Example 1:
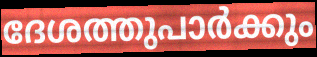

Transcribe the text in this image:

ദേശത്തുപാർക്കും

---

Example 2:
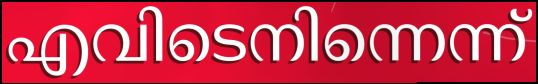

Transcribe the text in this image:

എവിടെനിന്നെന്ന്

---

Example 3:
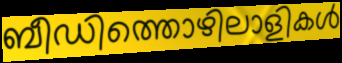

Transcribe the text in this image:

ബീഡിത്തൊഴിലാളികൾ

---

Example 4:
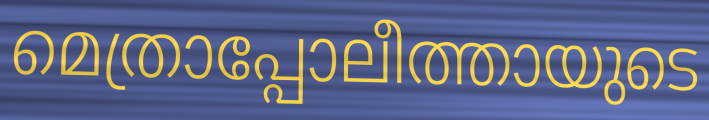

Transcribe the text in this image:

മെത്രാപ്പോലീത്തായുടെ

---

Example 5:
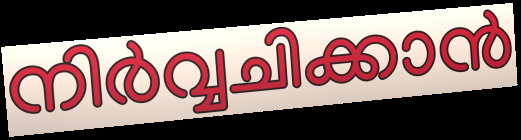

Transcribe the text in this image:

നിർവ്വചിക്കാൻ